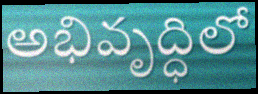
అభివృద్ధిలో